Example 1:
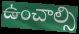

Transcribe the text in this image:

ఉంచాల్సి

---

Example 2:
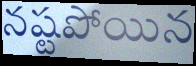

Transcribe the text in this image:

నష్టపోయిన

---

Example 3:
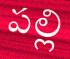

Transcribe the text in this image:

పల్లి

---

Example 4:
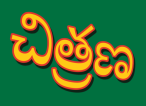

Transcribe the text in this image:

చిత్రణ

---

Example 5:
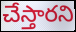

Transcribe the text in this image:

చేస్తారని